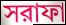
সরাফা